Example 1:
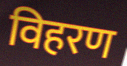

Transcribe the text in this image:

विहरण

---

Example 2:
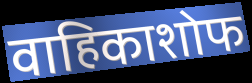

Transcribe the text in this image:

वाहिकाशोफ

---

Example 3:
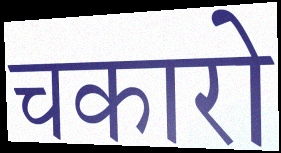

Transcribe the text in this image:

चकारो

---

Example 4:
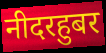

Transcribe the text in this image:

नीदरहुबर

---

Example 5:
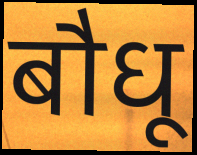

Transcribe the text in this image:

बौधू